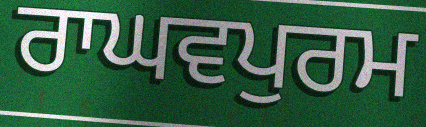
ਰਾਘਵਪੁਰਮ